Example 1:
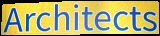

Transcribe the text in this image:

Architects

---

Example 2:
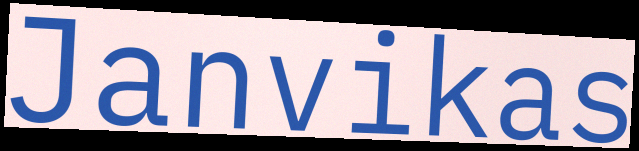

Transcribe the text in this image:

Janvikas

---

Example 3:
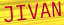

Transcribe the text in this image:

JIVAN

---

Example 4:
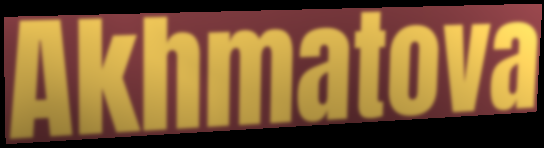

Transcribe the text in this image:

Akhmatova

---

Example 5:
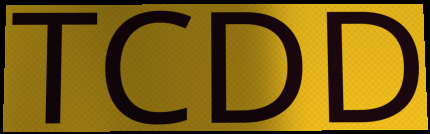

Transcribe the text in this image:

TCDD